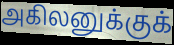
அகிலனுக்குக்